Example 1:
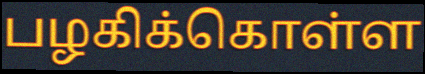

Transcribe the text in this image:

பழகிக்கொள்ள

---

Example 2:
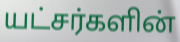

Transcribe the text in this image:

யட்சர்களின்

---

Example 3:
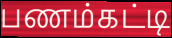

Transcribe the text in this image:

பணம்கட்டி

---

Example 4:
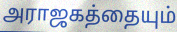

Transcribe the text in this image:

அராஜகத்தையும்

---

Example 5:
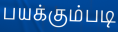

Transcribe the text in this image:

பயக்கும்படி